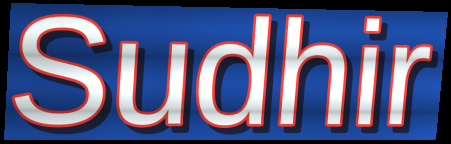
Sudhir